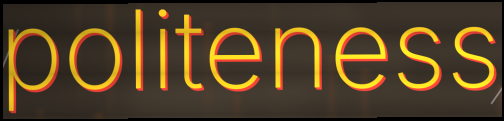
politeness